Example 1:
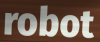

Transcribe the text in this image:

robot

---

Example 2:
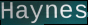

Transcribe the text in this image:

Haynes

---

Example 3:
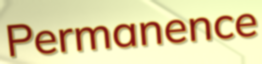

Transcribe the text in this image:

Permanence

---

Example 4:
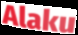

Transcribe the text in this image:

Alaku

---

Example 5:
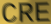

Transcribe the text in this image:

CRE